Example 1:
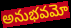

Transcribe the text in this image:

అనుభవమో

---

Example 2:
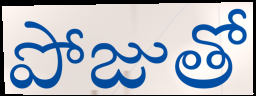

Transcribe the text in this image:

పోజుతో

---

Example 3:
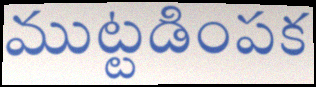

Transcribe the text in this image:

ముట్టడింపక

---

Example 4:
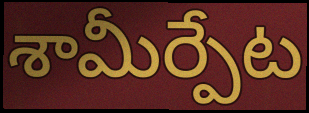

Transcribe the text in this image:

శామీర్పేట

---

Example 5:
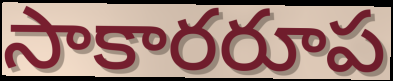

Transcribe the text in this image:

సాకారరూప